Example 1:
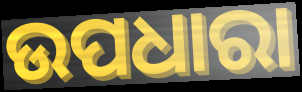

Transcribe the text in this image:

ଉପଧାରା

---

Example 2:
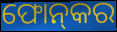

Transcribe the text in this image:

ଫୋନ୍‌କର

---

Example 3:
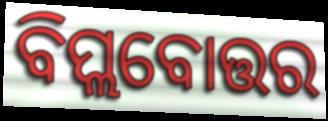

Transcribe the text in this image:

ବିପ୍ଲବୋତ୍ତର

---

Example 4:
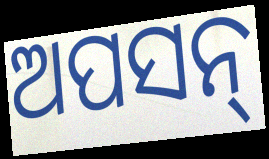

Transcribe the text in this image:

ଅପସନ୍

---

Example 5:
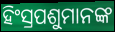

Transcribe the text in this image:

ହିଂସ୍ରପଶୁମାନଙ୍କ